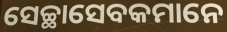
ସେଚ୍ଛାସେବକମାନେ